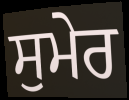
ਸੁਮੇਰ